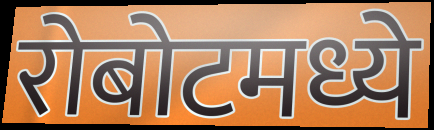
रोबोटमध्ये